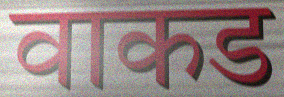
वाकड